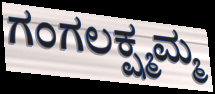
ಗಂಗಲಕ್ಷ್ಮಮ್ಮ